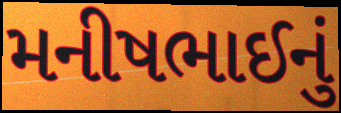
મનીષભાઈનું